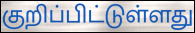
குறிப்பிட்டுள்ளது